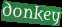
donkey